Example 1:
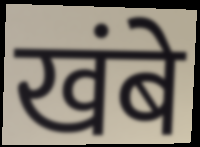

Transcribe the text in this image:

खंबे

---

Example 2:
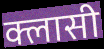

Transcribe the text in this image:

क्लासी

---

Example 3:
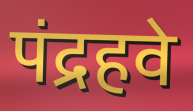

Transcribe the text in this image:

पंद्रहवे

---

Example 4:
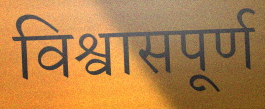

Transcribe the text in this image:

विश्वासपूर्ण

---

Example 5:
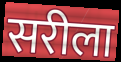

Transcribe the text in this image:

सरीला